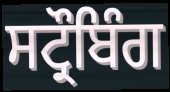
ਸਟ੍ਰੌਬਿੰਗ